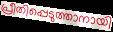
പ്രീതിപ്പെടുത്താനായി